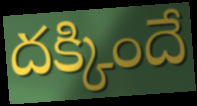
దక్కిందే